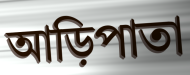
আড়িপাতা